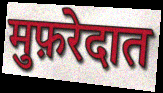
मुफ़रेदात